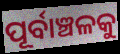
ପୂର୍ବାଞ୍ଚଳକୁ